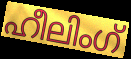
ഹീലിംഗ്